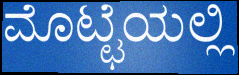
ಮೊಟ್ಟೆಯಲ್ಲಿ